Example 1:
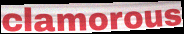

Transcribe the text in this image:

clamorous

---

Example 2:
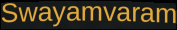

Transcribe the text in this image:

Swayamvaram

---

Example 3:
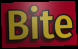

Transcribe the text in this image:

Bite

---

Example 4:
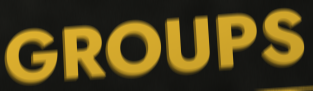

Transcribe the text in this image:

GROUPS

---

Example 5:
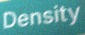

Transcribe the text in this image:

Density